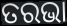
ତରଭା